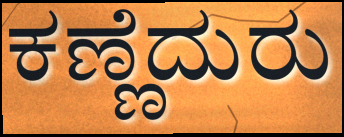
ಕಣ್ಣೆದುರು